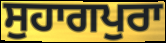
ਸੁਹਾਗਪੁਰਾ